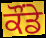
ਕੌਂਡੇ